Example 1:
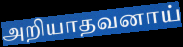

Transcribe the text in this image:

அறியாதவனாய்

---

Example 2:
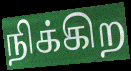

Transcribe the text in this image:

நிக்கிற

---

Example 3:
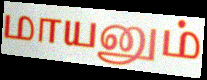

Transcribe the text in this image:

மாயனும்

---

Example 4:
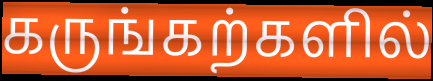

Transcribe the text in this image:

கருங்கற்களில்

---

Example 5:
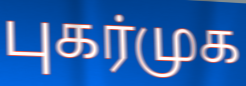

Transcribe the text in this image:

புகர்முக